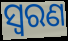
ସ୍ୱରଣ